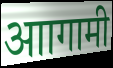
आागामी